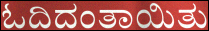
ಓದಿದಂತಾಯಿತು